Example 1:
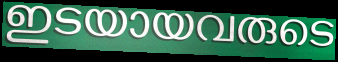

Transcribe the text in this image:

ഇടയായവരുടെ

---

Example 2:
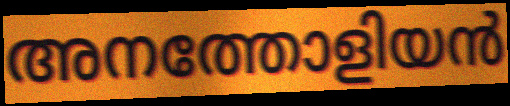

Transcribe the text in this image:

അനത്തോളിയൻ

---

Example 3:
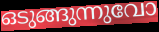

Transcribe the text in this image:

ഒടുങ്ങുന്നുവോ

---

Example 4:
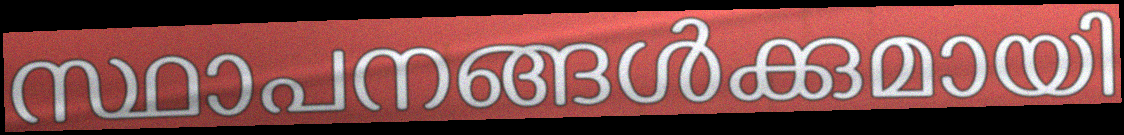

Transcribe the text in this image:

സ്ഥാപനങ്ങൾക്കുമായി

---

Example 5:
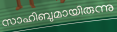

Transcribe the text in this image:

സാഹിബുമായിരുന്നു